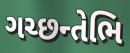
ગચ્છન્તેભિ